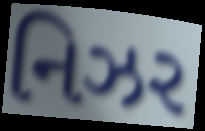
નિઝર